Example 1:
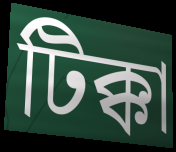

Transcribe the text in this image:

টিক্কা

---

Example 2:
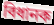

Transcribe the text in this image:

বিধানক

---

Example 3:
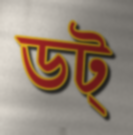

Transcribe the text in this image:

ডট্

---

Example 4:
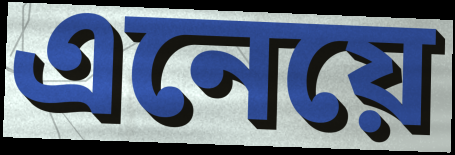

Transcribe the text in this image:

এনেয়ে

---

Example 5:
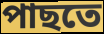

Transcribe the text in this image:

পাছতে